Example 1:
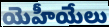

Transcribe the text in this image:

యెహీయేలు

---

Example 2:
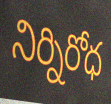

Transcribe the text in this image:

నిర్నిరోధ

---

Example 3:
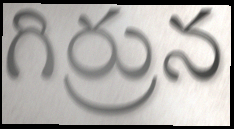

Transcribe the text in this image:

గిర్రున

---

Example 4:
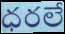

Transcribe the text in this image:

ధరలే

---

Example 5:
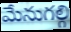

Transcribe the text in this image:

మేనుగల్గి